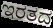
ಇರತದ